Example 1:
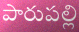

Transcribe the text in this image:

పారుపల్లి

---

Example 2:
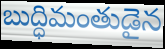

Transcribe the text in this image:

బుద్ధిమంతుడైన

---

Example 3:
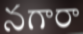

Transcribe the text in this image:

నగారా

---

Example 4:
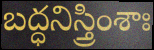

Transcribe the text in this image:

బద్ధనిస్త్రింశాః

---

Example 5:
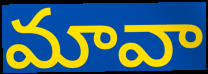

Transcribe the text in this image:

మావా